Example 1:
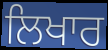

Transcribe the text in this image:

ਲਿਖਾਰ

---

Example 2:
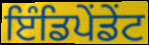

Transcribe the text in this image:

ਇੰਡਿਪੇਂਡੇਂਟ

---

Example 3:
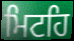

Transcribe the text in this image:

ਮਿਟਹਿ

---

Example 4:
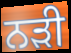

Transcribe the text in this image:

ਨੜੀ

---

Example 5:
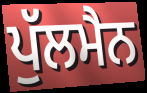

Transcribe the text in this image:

ਪੁੱਲਮੈਨ